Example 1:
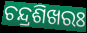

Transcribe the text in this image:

ଚନ୍ଦ୍ରଶିଖରଃ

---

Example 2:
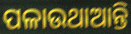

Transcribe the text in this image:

ପଳାଉଥାଆନ୍ତି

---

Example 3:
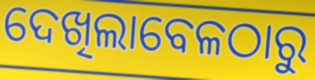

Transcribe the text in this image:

ଦେଖିଲାବେଳଠାରୁ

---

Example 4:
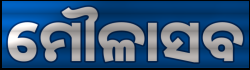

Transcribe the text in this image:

ମୌଳାସବ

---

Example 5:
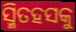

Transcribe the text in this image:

ସ୍ମିତହସକୁ